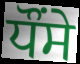
ਧੌਂਸੇ